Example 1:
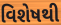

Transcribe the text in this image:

વિશેષથી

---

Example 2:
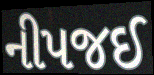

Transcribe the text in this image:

નીપજઈ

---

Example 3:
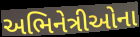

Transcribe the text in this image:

અભિનેત્રીઓના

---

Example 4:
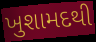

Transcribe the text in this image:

ખુશામદથી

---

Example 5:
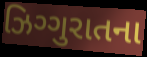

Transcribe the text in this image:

ઝિગ્ગુરાતના